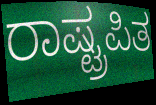
ರಾಷ್ಟ್ರಪಿತ